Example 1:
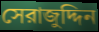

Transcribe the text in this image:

সেরাজুদ্দিন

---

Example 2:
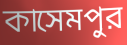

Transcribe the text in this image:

কাসেমপুর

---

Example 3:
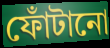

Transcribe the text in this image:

ফোঁটানো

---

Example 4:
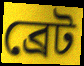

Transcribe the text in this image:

ব্রেট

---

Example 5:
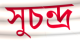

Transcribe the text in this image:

সুচন্দ্র